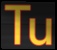
Tu